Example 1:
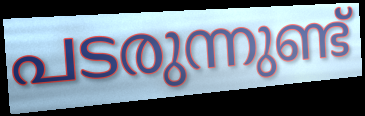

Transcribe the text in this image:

പടരുന്നുണ്ട്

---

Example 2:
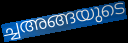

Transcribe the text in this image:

ച്ചഅങ്ങയുടെ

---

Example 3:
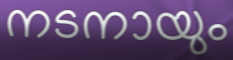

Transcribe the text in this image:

നടനായും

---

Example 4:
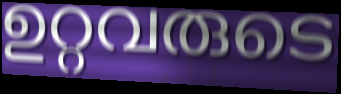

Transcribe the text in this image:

ഉറ്റവരുടെ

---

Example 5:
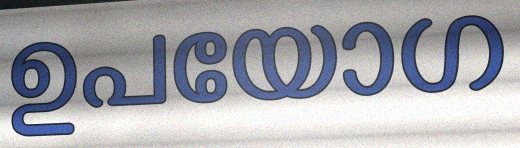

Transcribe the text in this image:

ഉപയോഗ